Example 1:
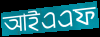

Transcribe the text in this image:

আইএএফ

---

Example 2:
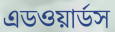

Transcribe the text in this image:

এডওয়ার্ডস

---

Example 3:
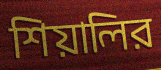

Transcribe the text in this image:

শিয়ালির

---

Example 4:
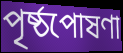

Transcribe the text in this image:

পৃষ্ঠপোষণা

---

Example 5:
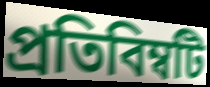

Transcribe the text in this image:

প্রতিবিম্বটি